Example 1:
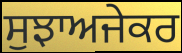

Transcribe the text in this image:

ਸੁਝਾਅਜੇਕਰ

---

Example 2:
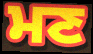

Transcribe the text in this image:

ਮਣ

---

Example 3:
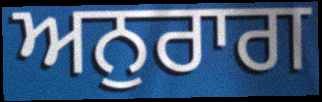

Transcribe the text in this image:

ਅਨੁਰਾਗ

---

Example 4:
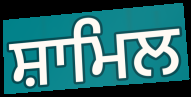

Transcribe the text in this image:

ਸ਼ਾਮਿਲ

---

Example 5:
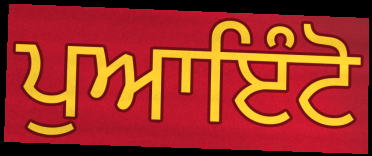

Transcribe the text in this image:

ਪੁਆਇੰਟੋ